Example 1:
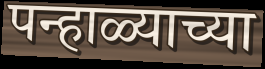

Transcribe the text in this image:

पन्हाळ्याच्या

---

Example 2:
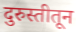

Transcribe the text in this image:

दुरुस्तीतून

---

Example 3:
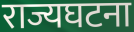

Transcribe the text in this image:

राज्यघटना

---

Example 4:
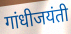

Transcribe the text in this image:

गांधीजयंती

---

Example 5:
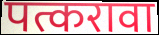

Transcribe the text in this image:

पत्करावा